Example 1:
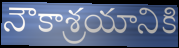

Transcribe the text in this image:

నౌకాశ్రయానికి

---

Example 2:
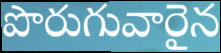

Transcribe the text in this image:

పొరుగువారైన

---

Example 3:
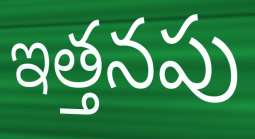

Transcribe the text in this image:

ఇత్తనపు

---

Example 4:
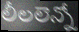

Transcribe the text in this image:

లీలలెన్నో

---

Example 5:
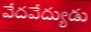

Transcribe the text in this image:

వేదవేద్యుడు